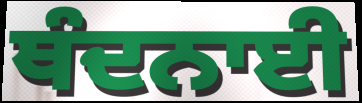
ਥੰਦਨਾਈ